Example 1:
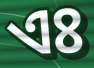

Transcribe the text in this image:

ଏଃ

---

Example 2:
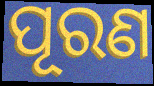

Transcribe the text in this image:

ପୂରଣ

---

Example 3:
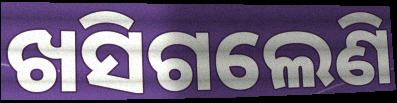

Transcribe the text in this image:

ଖସିଗଲେଣି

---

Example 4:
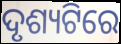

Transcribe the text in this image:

ଦୃଶ୍ୟଟିରେ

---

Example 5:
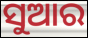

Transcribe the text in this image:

ସୁଆର